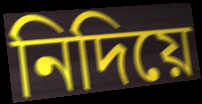
নিদিয়ে